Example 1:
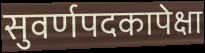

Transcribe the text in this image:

सुवर्णपदकापेक्षा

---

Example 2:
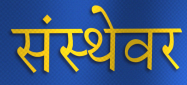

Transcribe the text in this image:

संस्थेवर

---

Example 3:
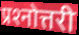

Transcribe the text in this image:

प्रश्नोत्तरी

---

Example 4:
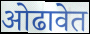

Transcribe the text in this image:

ओढावेत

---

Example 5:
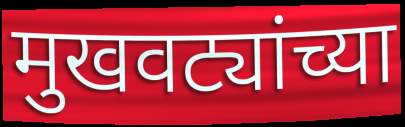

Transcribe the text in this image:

मुखवट्यांच्या